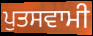
ਪੁਤਸਵਾਮੀ